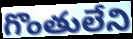
గొంతులేని